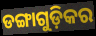
ଡଙ୍ଗାଗୁଡ଼ିକର